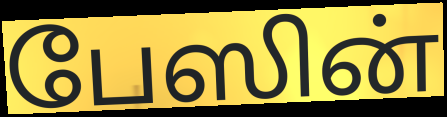
பேஸின்